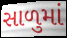
સાળુમાં